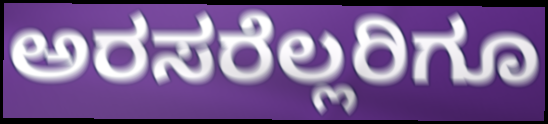
ಅರಸರೆಲ್ಲರಿಗೂ